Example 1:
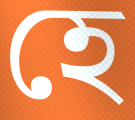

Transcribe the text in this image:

হে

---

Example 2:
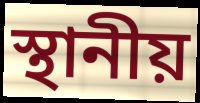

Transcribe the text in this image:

স্থানীয়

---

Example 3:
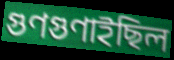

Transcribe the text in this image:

গুণগুণাইছিল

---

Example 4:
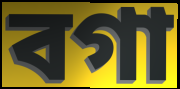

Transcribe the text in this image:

বগা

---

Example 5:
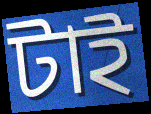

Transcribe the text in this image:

টাই